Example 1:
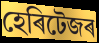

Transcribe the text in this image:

হেৰিটেজৰ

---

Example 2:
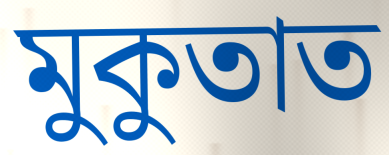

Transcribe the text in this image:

মুকুতাত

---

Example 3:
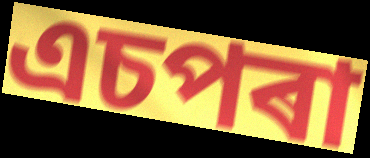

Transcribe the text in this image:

এচপৰা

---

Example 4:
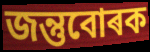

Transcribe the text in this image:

জন্তুবোৰক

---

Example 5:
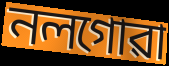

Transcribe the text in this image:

নলগোৱা